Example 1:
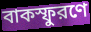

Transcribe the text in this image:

বাকস্ফুরণে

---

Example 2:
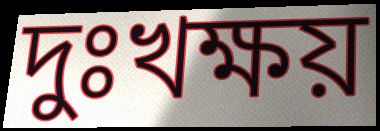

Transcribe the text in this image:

দুঃখক্ষয়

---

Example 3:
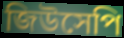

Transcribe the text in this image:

জিউসেপি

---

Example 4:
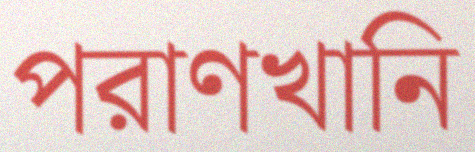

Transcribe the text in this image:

পরাণখানি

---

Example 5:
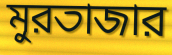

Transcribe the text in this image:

মুরতাজার